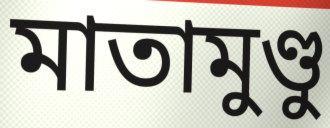
মাতামুণ্ডু